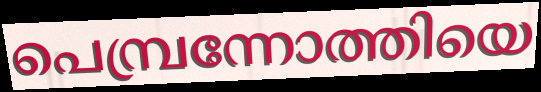
പെമ്പ്രന്നോത്തിയെ